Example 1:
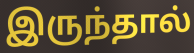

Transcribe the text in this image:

இருந்தால்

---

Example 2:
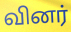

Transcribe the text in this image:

வினர்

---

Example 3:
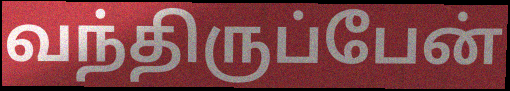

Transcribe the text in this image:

வந்திருப்பேன்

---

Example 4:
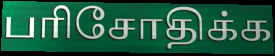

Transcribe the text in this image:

பரிசோதிக்க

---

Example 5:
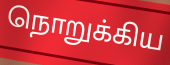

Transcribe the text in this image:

நொறுக்கிய